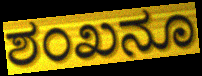
ಶಂಖನೂ